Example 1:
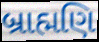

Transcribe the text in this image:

બ્રાહ્મણિ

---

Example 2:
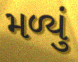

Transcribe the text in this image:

મળ્યું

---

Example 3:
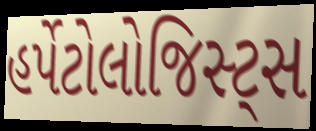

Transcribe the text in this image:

હર્પેટોલોજિસ્ટ્સ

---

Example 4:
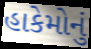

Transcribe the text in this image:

હાકેમોનું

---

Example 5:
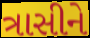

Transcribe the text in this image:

ત્રાસીને